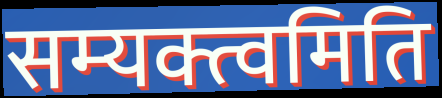
सम्यक्त्वमिति